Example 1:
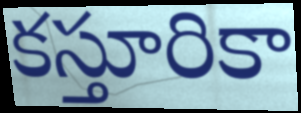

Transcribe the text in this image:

కస్తూరికా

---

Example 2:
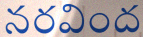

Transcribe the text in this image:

నరవింద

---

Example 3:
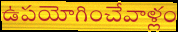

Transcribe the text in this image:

ఉపయోగించేవాళ్లం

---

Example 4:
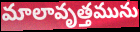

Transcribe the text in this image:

మాలావృత్తమును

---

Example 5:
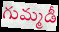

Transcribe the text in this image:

గుమ్మడీ